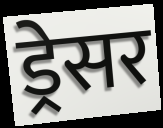
ड्रेसर